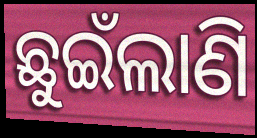
ଛୁଇଁଲାଣି